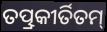
ତତ୍ପ୍ରକୀର୍ତିତମ୍